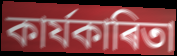
কাৰ্যকাৰিতা